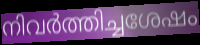
നിവർത്തിച്ചശേഷം